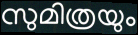
സുമിത്രയും